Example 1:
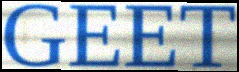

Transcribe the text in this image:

GEET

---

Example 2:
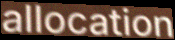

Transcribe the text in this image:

allocation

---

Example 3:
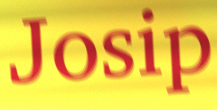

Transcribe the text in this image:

Josip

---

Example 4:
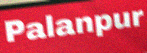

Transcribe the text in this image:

Palanpur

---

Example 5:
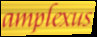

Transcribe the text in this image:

amplexus